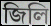
জিলি